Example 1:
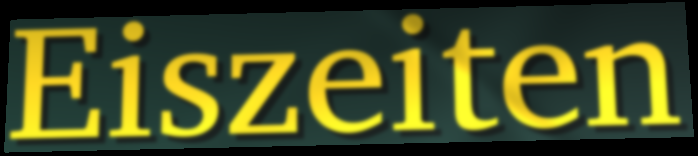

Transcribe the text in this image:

Eiszeiten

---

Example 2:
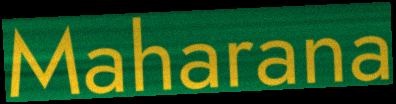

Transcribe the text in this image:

Maharana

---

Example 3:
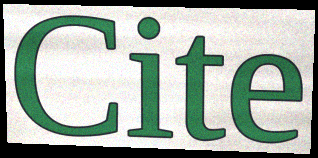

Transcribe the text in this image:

Cite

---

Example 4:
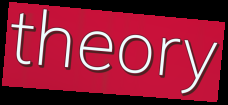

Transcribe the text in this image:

theory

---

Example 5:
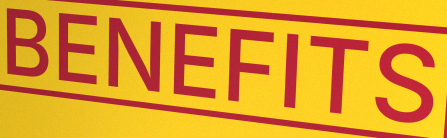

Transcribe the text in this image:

BENEFITS